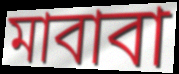
মাবাবা